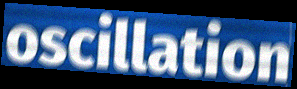
oscillation